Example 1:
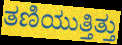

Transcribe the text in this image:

ತಣಿಯುತ್ತಿತ್ತು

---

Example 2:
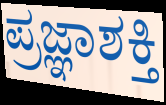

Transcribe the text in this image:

ಪ್ರಜ್ಞಾಶಕ್ತಿ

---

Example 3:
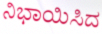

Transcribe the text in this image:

ನಿಭಾಯಿಸಿದ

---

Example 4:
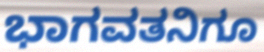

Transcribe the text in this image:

ಭಾಗವತನಿಗೂ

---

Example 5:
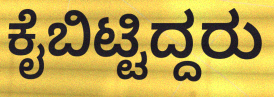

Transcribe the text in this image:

ಕೈಬಿಟ್ಟಿದ್ದರು